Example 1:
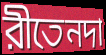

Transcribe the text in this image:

রীতেনদা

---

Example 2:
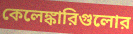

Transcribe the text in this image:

কেলেঙ্কারিগুলোর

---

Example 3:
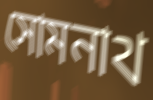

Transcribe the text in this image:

সোমনাথ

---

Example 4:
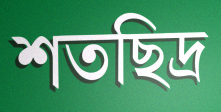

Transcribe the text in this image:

শতছিদ্র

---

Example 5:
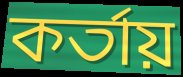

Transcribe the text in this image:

কর্তায়